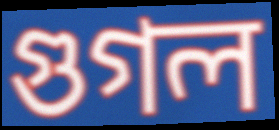
গুগল